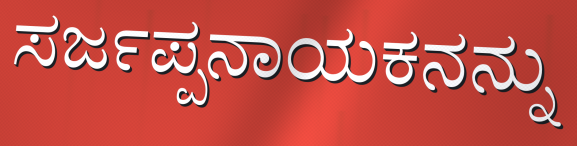
ಸರ್ಜಪ್ಪನಾಯಕನನ್ನು